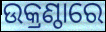
ଉକ୍ରଣ୍ଠାରେ